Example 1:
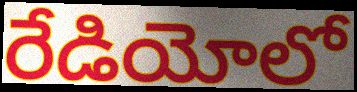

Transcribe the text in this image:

రేడియోలో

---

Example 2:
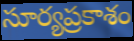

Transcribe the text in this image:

సూర్యప్రకాశం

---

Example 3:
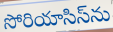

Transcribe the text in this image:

సోరియాసిస్‌ను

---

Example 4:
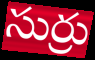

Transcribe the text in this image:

సుర్రు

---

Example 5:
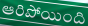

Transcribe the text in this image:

ఆరిపోయింది